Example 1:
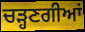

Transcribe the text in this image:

ਚੜ੍ਹਣਗੀਆਂ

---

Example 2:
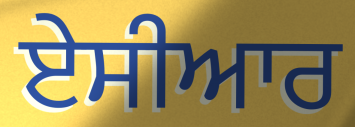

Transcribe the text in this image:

ਏਸੀਆਰ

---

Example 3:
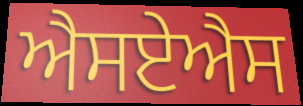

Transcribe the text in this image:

ਐਸਏਐਸ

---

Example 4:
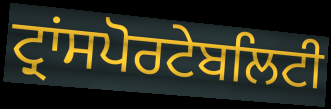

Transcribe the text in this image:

ਟ੍ਰਾਂਸਪੋਰਟੇਬਲਿਟੀ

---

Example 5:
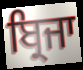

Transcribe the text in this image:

ਬ੍ਰਿਜਾ